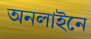
অনলাইনে